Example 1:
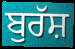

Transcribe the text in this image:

ਬੁਰੱਸ਼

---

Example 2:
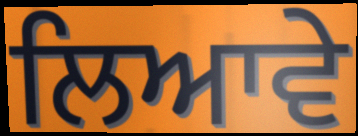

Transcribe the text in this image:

ਲਿਆਵੇ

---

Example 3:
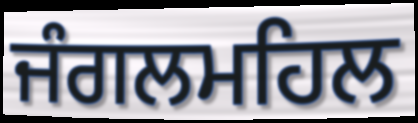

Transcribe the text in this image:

ਜੰਗਲਮਹਿਲ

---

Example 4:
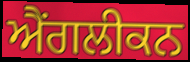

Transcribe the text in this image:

ਐਂਗਲੀਕਨ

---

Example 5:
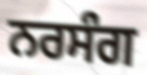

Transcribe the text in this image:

ਨਰਸੰਗ